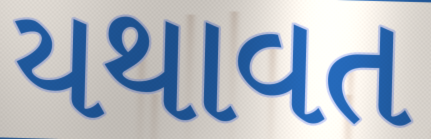
યથાવત